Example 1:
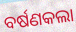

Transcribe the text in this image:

ବର୍ଷଣକଲା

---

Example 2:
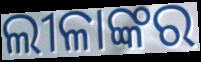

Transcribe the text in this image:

ଲୀଳାଙ୍କର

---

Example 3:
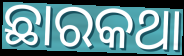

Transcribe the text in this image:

ଛାରକଥା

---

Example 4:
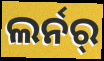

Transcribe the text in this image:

ଲର୍ନର୍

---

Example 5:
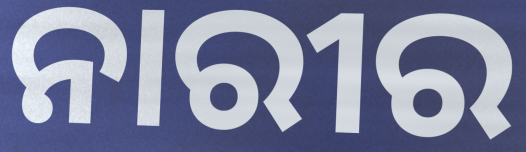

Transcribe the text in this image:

ନାରୀର